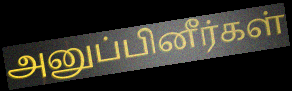
அனுப்பினீர்கள்